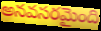
అనవసరమైంది